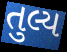
તુલ્ય